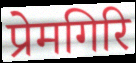
प्रेमगिरि